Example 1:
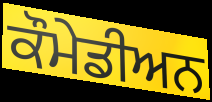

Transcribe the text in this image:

ਕੌਮੇਡੀਅਨ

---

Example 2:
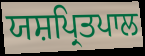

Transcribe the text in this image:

ਯਸ਼ਪ੍ਰਿਤਪਾਲ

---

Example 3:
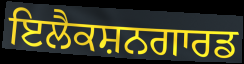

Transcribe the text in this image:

ਇਲੈਕਸ਼ਨਗਾਰਡ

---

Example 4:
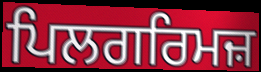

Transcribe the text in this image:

ਪਿਲਗਰਿਮਜ਼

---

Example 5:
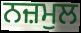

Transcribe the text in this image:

ਨਜ਼ਮੁਲ